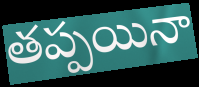
తప్పయినా